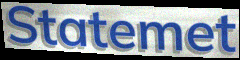
Statemet